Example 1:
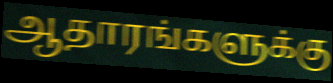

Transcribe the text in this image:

ஆதாரங்களுக்கு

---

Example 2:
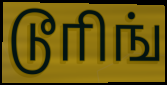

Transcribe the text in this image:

டூரிங்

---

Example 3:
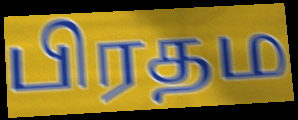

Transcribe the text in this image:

பிரதம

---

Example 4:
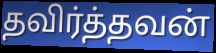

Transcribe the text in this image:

தவிர்த்தவன்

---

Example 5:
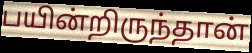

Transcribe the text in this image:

பயின்றிருந்தான்